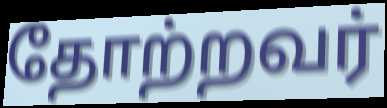
தோற்றவர்